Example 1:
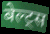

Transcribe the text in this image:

बेल्ट्स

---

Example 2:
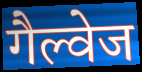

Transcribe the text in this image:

गैल्वेज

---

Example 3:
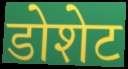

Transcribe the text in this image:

डोशेट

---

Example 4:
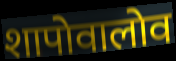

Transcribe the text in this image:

शापोवालोव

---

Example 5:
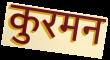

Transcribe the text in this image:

कुरमन